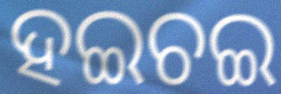
ହଇଚଇ